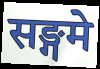
सङ्गमे